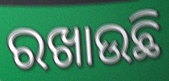
ରଖାଉଛି